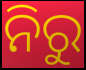
ନିରୁ